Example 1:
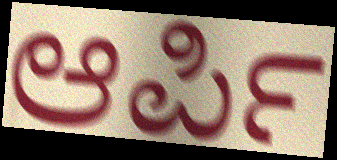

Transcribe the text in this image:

ಆರ್ಪಿ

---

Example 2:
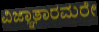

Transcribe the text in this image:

ವಿಜ್ಞಾತಾರಮರೇ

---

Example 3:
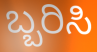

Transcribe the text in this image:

ಬ್ಬರಿಸಿ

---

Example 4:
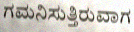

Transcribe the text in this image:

ಗಮನಿಸುತ್ತಿರುವಾಗ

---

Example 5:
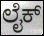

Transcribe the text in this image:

ಲೈಕ್